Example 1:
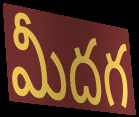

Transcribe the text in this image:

మీదగ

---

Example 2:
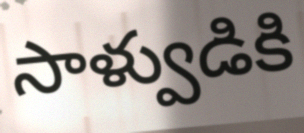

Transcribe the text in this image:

సాళ్వుడికి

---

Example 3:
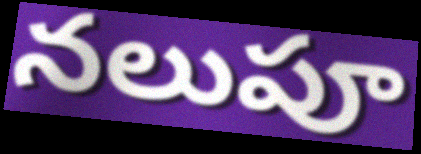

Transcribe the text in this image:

నలుపూ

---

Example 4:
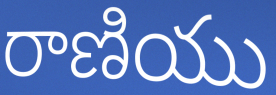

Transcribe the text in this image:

రాణియు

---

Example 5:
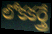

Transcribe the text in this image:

లోకకర్త్రే